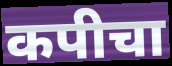
कपीचा